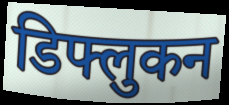
डिफ्लुकन